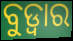
ବୁଡ୍ୱାର